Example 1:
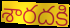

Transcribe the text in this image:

శారదకి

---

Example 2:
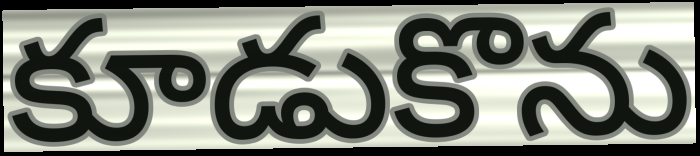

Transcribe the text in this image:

కూడుకొను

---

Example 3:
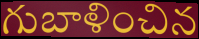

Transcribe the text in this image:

గుబాళించిన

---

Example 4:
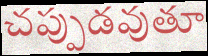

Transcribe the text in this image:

చప్పుడవుతూ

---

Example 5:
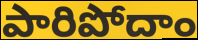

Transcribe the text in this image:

పారిపోదాం